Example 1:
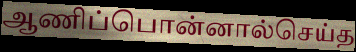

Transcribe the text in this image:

ஆணிப்பொன்னால்செய்த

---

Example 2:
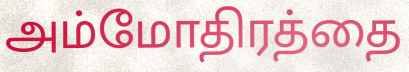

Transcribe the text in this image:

அம்மோதிரத்தை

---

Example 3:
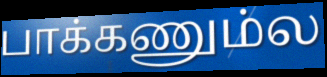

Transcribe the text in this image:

பாக்கணும்ல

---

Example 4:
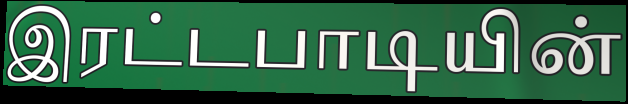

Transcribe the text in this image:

இரட்டபாடியின்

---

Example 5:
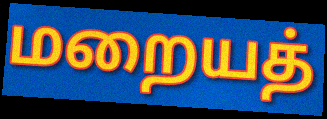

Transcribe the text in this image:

மறையத்